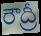
రౌద్రీ